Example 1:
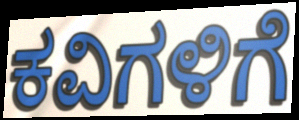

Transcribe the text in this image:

ಕವಿಗಳಿಗೆ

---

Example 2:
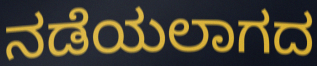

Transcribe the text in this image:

ನಡೆಯಲಾಗದ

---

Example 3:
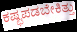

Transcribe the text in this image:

ಕಷ್ಟಪಡಬೇಕಿತ್ತು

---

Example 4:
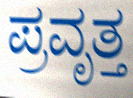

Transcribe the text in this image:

ಪ್ರವೃತ್ತ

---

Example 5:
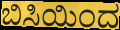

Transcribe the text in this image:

ಬಿಸಿಯಿಂದ